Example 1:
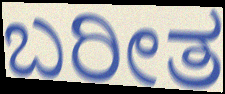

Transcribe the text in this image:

ಬರೀತ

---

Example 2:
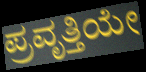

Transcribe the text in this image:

ಪ್ರವೃತ್ತಿಯೇ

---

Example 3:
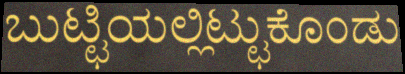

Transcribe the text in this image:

ಬುಟ್ಟಿಯಲ್ಲಿಟ್ಟುಕೊಂಡು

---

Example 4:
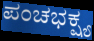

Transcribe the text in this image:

ಪಂಚಭಕ್ಷ್ಯ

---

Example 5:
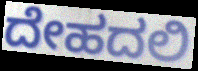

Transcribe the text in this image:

ದೇಹದಲಿ